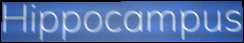
Hippocampus